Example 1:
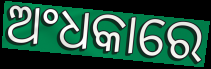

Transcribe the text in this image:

ଅଂଧକାରେ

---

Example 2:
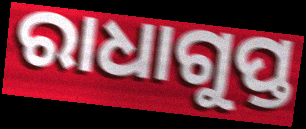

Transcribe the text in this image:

ରାଧାଗୁପ୍ତ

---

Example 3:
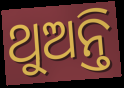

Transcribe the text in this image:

ଥୁଅନ୍ତି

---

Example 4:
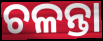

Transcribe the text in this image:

ଚଳନ୍ତା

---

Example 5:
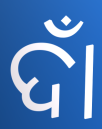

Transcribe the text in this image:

ଦାଁ